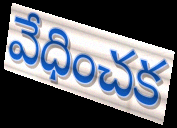
వేధించక